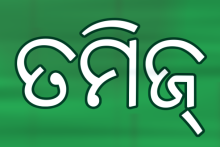
ତମିଜ୍